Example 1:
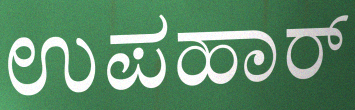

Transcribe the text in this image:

ಉಪಹಾರ್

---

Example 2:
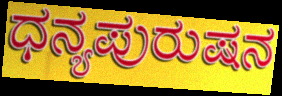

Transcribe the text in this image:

ಧನ್ಯಪುರುಷನ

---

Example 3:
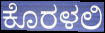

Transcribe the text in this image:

ಕೊರಳಲಿ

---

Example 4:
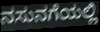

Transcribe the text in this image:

ನಸುನಗೆಯಲ್ಲಿ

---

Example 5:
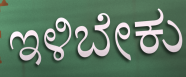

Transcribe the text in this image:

ಇಳಿಬೇಕು